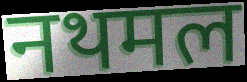
नथमल